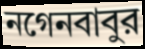
নগেনবাবুর